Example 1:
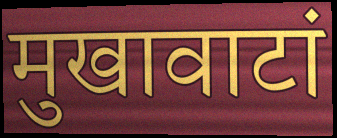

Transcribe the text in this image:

मुखावाटां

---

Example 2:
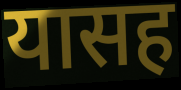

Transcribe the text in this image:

यासह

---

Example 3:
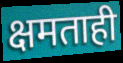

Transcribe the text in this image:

क्षमताही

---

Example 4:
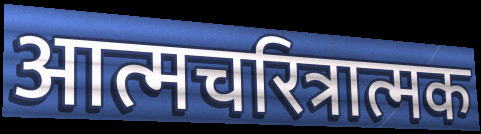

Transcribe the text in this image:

आत्मचरित्रात्मक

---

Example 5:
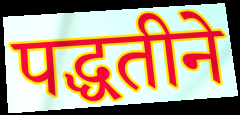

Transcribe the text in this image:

पद्धतीने